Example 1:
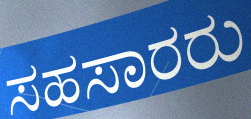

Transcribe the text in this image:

ಸಹಸಾರರು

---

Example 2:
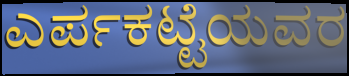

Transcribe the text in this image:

ಎರ್ಪಕಟ್ಟೆಯವರ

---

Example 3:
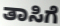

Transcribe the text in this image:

ತಾಸಿಗೆ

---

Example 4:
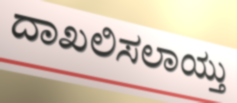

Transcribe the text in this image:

ದಾಖಲಿಸಲಾಯ್ತು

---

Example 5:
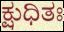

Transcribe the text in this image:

ಕ್ಷುಧಿತಃ